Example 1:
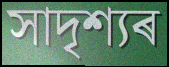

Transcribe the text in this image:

সাদৃশ্যৰ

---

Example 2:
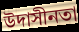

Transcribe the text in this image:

উদাসীনতা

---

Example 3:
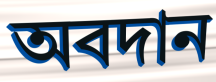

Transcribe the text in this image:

অবদান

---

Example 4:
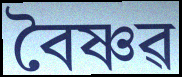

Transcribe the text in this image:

বৈষ্ণৱ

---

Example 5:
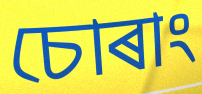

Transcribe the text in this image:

চোৰাং